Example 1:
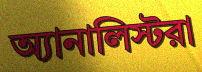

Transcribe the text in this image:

অ্যানালিস্টরা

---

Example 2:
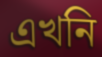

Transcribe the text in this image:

এখনি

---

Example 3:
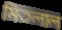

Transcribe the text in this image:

মিতলাল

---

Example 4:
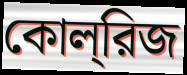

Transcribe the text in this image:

কোল্‌রিজ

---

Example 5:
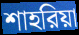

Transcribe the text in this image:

শাহরিয়া